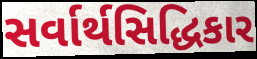
સર્વાર્થસિદ્ધિકાર